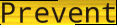
Prevent